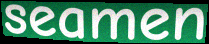
seamen